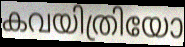
കവയിത്രിയോ